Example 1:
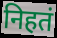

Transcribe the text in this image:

निहतं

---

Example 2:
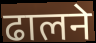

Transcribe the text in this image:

ढालने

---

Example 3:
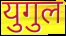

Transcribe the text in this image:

युगुल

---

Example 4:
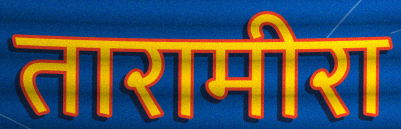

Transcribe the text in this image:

तारामीरा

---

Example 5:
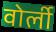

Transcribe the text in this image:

वोर्ली